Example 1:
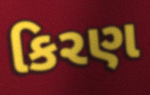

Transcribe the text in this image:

કિરણ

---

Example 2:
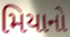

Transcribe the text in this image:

મિયાનો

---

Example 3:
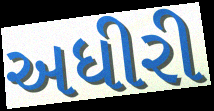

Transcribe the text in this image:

અધીરી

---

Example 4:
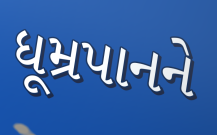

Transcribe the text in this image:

ધૂમ્રપાનને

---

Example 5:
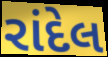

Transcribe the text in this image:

રાંદેલ